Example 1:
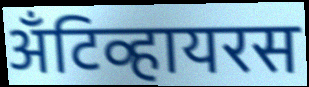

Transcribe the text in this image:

अँटिव्हायरस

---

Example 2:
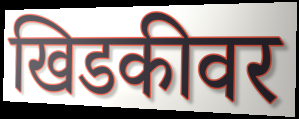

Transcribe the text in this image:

खिडकीवर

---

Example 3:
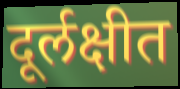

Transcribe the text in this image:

दूर्लक्षीत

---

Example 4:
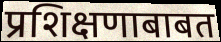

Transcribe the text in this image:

प्रशिक्षणाबाबत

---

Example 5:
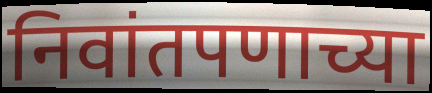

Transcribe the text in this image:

निवांतपणाच्या